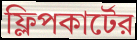
ফ্লিপকার্টের